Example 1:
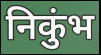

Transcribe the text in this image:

निकुंभ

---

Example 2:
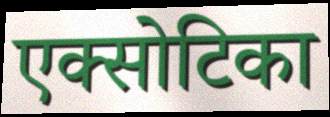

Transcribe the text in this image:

एक्सोटिका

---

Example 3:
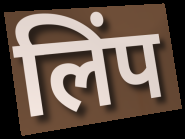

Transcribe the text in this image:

लिंप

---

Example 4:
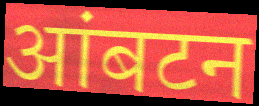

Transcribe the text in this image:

आंबटन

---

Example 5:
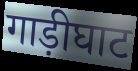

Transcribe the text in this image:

गाड़ीघाट